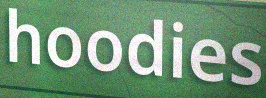
hoodies